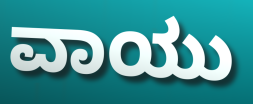
ವಾಯು